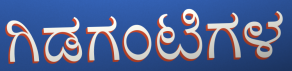
ಗಿಡಗಂಟಿಗಳ